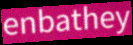
enbathey